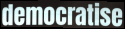
democratise